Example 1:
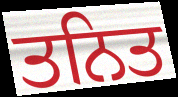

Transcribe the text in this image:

ਤਨਿਤ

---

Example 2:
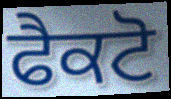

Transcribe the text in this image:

ਫੈਕਟੋ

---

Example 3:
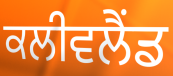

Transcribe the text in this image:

ਕਲੀਵਲੈਂਡ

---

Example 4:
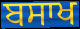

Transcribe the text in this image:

ਬਸਾਖ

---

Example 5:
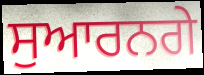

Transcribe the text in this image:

ਸੁਆਰਨਗੇ